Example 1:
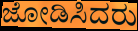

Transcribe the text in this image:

ಜೋಡಿಸಿದರು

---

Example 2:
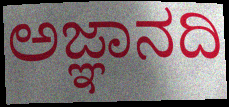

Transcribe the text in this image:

ಅಜ್ಞಾನದಿ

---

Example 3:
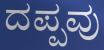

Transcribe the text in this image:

ದಪ್ಪವು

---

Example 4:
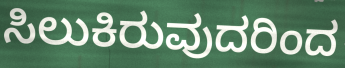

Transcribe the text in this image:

ಸಿಲುಕಿರುವುದರಿಂದ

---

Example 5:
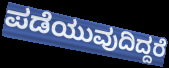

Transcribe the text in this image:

ಪಡೆಯುವುದಿದ್ದರೆ